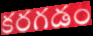
కరగడం